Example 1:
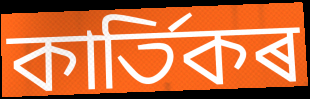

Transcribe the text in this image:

কাৰ্তিকৰ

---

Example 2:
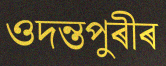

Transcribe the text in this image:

ওদন্তপুৰীৰ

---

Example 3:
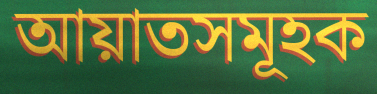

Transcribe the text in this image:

আয়াতসমূহক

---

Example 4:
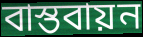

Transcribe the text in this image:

বাস্তবায়ন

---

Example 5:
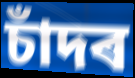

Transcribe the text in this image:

চাঁদৰ